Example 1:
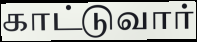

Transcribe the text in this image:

காட்டுவார்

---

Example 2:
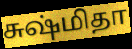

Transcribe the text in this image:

சுஷ்மிதா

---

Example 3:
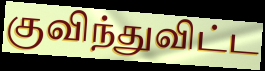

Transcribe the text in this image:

குவிந்துவிட்ட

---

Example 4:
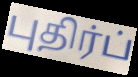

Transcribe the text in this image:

புதிர்ப்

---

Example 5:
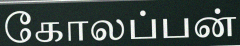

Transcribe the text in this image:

கோலப்பன்